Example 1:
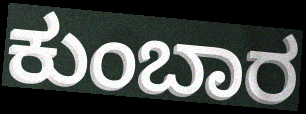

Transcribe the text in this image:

ಕುಂಬಾರ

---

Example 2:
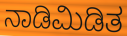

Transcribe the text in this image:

ನಾಡಿಮಿಡಿತ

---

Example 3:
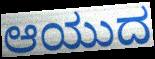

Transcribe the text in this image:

ಆಯುದ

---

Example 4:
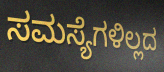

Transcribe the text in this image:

ಸಮಸ್ಯೆಗಳಿಲ್ಲದ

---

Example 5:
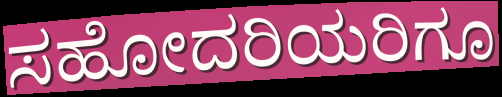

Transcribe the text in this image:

ಸಹೋದರಿಯರಿಗೂ